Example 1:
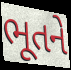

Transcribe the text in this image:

ભૂતને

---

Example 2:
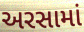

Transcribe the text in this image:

અરસામાં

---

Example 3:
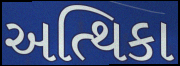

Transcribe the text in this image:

અત્થિકા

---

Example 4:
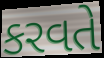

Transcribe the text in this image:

કરવતે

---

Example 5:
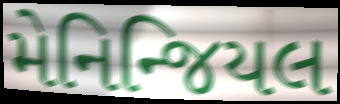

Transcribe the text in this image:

મેનિન્જિયલ